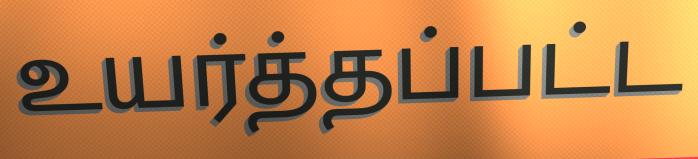
உயர்த்தப்பட்ட